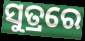
ସୁତ୍ରରେ